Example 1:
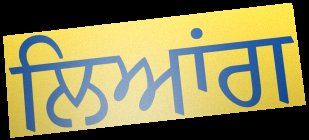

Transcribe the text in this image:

ਲਿਆਂਗ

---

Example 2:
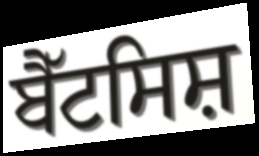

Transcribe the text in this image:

ਬੈੱਟਸਿਸ਼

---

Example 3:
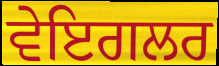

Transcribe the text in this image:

ਵੇਇਗਲਰ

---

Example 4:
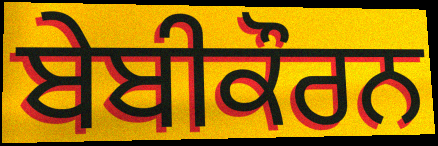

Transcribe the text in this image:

ਬੇਬੀਕੌਰਨ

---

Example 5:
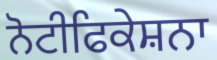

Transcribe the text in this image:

ਨੋਟੀਫਿਕੇਸ਼ਨਾ